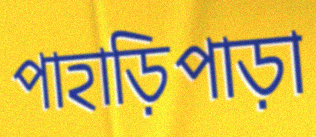
পাহাড়িপাড়া